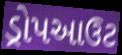
ડ્રોપઆઉટ